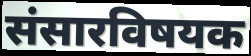
संसारविषयक